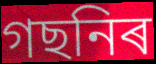
গছনিৰ